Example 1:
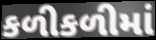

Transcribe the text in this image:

કળીકળીમાં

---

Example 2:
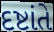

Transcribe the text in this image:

દષ્ટાંતે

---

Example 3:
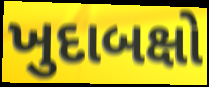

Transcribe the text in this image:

ખુદાબક્ષો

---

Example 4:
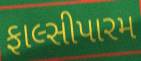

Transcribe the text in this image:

ફાલ્સીપારમ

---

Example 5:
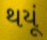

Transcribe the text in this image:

થયૂં